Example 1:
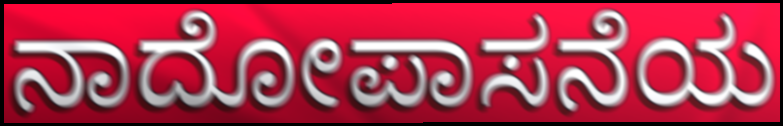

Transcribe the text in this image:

ನಾದೋಪಾಸನೆಯ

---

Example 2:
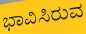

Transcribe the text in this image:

ಭಾವಿಸಿರುವ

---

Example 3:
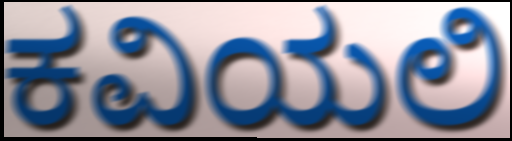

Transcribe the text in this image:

ಕವಿಯಲಿ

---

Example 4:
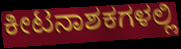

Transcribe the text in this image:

ಕೀಟನಾಶಕಗಳಲ್ಲಿ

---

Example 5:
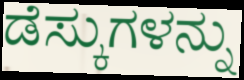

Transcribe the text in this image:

ಡೆಸ್ಕುಗಳನ್ನು